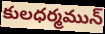
కులధర్మమున్